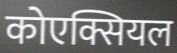
कोएक्सियल